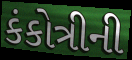
કંકોત્રીની